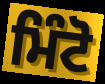
ਮਿੰਟੋ